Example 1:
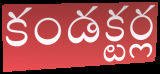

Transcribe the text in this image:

కండక్టర్ల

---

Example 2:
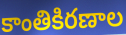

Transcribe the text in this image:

కాంతికిరణాల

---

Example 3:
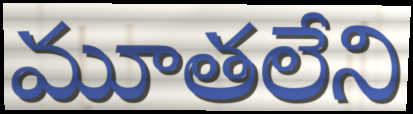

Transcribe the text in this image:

మూతలేని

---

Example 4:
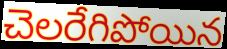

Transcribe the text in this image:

చెలరేగిపోయిన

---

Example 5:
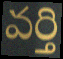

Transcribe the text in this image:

వర్తి